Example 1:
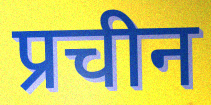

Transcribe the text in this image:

प्रचीन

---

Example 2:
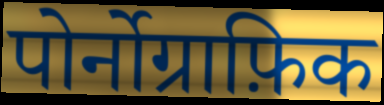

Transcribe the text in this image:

पोर्नोग्राफ़िक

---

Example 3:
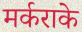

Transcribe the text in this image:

मर्कराके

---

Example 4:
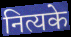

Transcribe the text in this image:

नित्यके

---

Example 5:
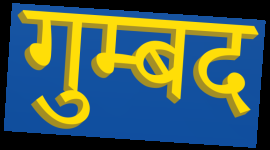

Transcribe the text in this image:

गुम्बद